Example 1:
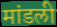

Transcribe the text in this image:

मांडली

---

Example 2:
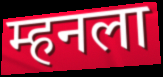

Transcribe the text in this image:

म्हनला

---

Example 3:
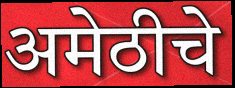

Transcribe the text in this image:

अमेठीचे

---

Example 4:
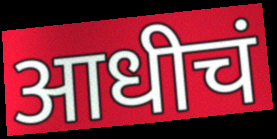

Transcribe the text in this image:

आधीचं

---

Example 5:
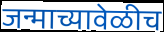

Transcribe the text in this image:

जन्माच्यावेळीच